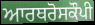
ਆਰਥਰੋਸਕੌਪੀ